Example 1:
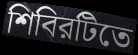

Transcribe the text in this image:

শিবিরটিতে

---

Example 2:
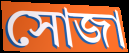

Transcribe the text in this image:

সোজা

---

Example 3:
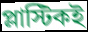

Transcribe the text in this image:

প্লাস্টিকই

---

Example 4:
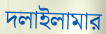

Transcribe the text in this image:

দলাইলামার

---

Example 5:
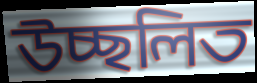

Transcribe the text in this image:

উচ্ছলিত